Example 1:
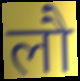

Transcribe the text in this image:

लौ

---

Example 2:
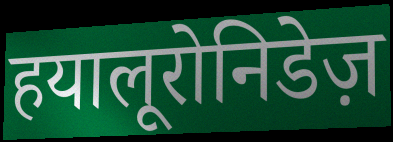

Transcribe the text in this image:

हयालूरोनिडेज़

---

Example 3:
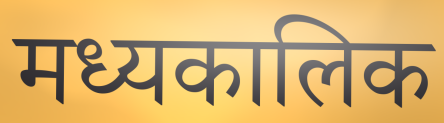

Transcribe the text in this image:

मध्यकालिक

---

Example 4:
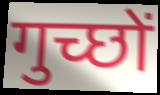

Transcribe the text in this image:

गुच्छों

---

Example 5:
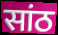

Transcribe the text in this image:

सांठ